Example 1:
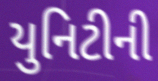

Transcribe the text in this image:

યુનિટીની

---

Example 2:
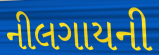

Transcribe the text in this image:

નીલગાયની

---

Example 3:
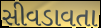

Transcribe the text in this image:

સીવડાવતા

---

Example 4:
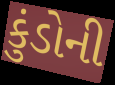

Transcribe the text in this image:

કુંડોની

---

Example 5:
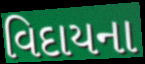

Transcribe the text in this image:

વિદાયના